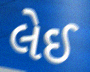
લેઈ